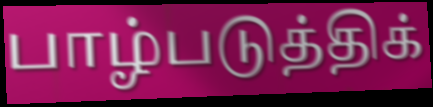
பாழ்படுத்திக்